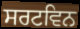
ਸਰਟਵਿਨ